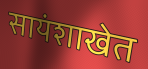
सायंशाखेत